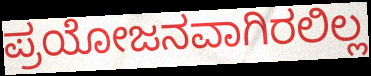
ಪ್ರಯೋಜನವಾಗಿರಲಿಲ್ಲ